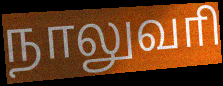
நாலுவரி